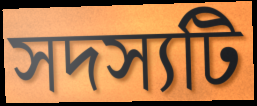
সদস্যটি